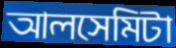
আলসেমিটা